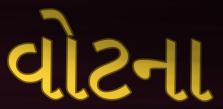
વોટના